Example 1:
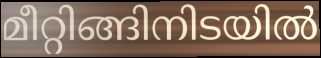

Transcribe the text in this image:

മീറ്റിങ്ങിനിടയിൽ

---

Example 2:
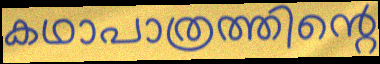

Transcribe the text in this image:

കഥാപാത്രത്തിന്റെ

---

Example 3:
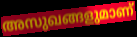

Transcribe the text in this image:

അസുഖങ്ങളുമാണ്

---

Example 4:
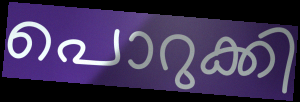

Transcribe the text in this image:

പൊറുക്കി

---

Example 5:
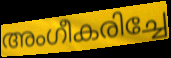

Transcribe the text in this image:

അംഗീകരിച്ചേ